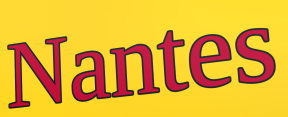
Nantes